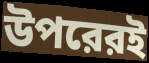
উপরেরই